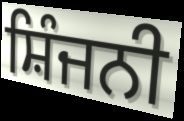
ਸ਼ਿੰਜਨੀ